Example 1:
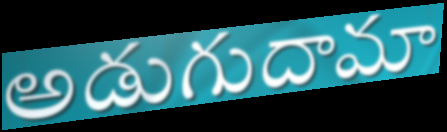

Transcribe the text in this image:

అడుగుదామా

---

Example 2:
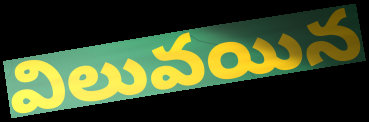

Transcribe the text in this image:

విలువయిన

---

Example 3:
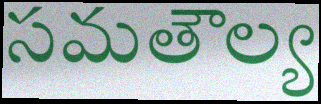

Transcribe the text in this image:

సమతౌల్య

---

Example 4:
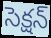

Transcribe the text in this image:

సెక్షన్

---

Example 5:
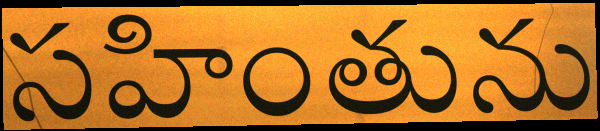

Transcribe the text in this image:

సహింతును